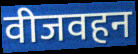
वीजवहन